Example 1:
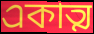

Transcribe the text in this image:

একাত্ম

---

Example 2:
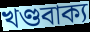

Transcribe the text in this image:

খণ্ডবাক্য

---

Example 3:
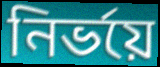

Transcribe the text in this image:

নিৰ্ভয়ে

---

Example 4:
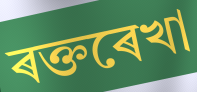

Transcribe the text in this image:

ৰক্তৰেখা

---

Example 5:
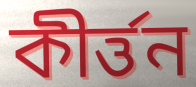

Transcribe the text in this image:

কীৰ্ত্তন